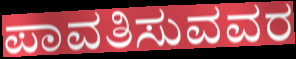
ಪಾವತಿಸುವವರ